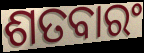
ଶତବାରଂ